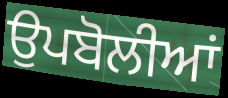
ਉਪਬੋਲੀਆਂ